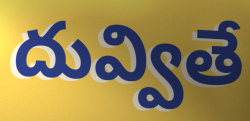
దువ్వితే